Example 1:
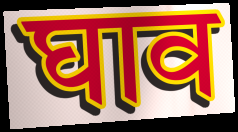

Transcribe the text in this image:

घाव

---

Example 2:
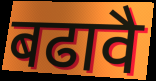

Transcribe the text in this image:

बढावै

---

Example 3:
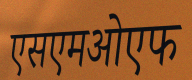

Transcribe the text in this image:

एसएमओएफ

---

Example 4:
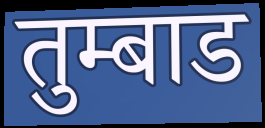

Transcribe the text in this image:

तुम्बाड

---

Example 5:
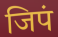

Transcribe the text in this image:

जिपं